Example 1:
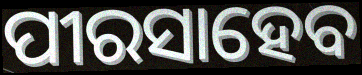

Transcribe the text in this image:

ପୀରସାହେବ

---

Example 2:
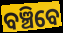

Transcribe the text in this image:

ବଞ୍ଚିବେ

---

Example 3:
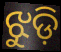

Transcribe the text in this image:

ଝୁଡ଼ି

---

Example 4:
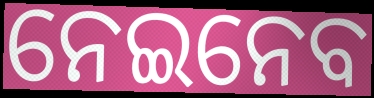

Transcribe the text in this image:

ନେଇନେବ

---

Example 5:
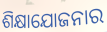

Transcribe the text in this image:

ଶିକ୍ଷାଯୋଜନାର